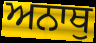
ਅਨਾਥੁ